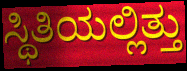
ಸ್ಥಿತಿಯಲ್ಲಿತ್ತು